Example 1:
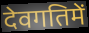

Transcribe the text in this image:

देवगतिमें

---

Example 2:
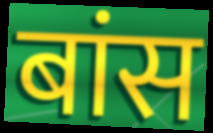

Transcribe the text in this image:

बांस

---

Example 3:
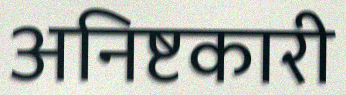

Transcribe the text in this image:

अनिष्टकारी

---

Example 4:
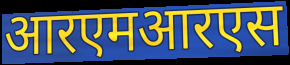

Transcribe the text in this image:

आरएमआरएस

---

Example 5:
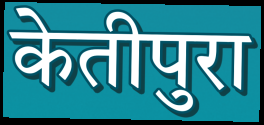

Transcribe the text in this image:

केतीपुरा